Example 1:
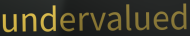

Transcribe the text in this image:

undervalued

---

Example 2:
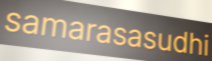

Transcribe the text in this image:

samarasasudhi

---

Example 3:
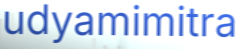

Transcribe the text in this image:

udyamimitra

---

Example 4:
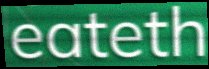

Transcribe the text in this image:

eateth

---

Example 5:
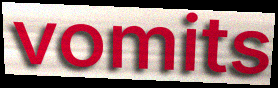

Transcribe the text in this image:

vomits